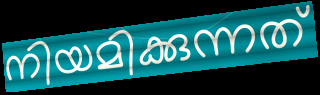
നിയമിക്കുന്നത്